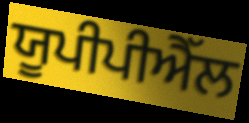
ਯੂਪੀਪੀਐੱਲ